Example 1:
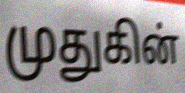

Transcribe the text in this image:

முதுகின்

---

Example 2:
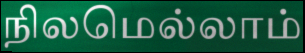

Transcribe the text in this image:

நிலமெல்லாம்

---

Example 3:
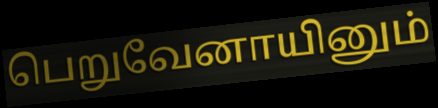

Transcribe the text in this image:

பெறுவேனாயினும்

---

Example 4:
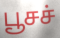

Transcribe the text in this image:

பூசச்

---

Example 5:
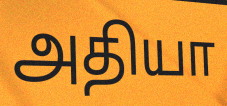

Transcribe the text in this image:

அதியா